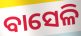
ବାସେଳି